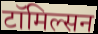
टॉमिल्सन